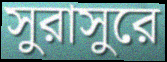
সুরাসুরে